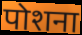
पोशना